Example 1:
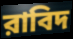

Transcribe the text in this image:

রাবিদ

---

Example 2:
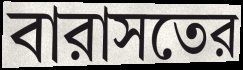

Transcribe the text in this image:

বারাসতের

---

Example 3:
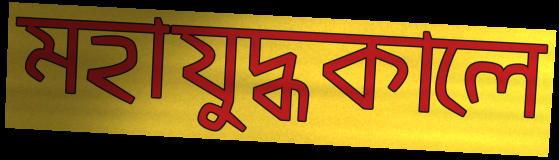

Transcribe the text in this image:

মহাযুদ্ধকালে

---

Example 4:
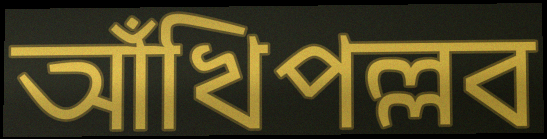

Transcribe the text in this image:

আঁখিপল্লব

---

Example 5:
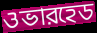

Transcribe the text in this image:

ওভারহেড